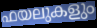
ഫയലുകളും